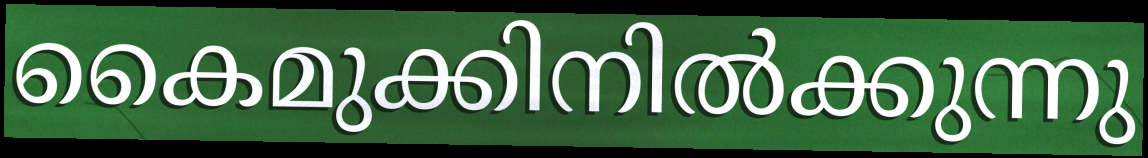
കൈമുക്കിനിൽക്കുന്നു